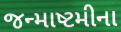
જન્માષ્ટમીના